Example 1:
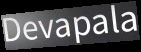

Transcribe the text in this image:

Devapala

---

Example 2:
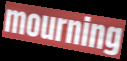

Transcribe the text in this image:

mourning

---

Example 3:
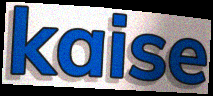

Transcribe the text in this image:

kaise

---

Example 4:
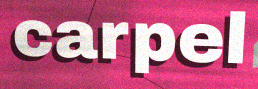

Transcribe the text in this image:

carpel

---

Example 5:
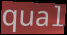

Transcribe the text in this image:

qual